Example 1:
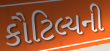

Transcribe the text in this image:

કૌટિલ્યની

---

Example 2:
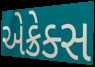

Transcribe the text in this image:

એક્રેક્સ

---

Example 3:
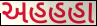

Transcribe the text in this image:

અહહહા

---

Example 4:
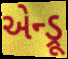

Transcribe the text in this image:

એન્ડ્રૂ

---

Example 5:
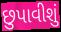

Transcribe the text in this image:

છુપાવીશું